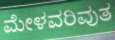
ಮೇಳವರಿವುತ